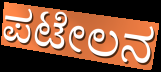
ಪಟೇಲನ